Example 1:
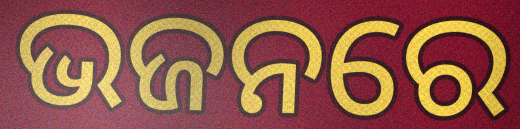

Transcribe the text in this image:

ଭଜନରେ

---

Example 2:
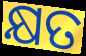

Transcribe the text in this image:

କ୍ଷତ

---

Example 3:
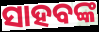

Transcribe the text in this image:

ସାହବଙ୍କ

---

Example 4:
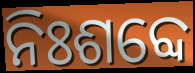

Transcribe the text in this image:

ନିଃଶବ୍ଦେ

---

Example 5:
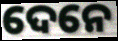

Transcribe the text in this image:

ଦେନେ